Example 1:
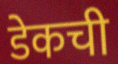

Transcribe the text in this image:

डेकची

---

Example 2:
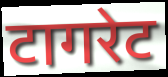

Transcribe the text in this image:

टागरेट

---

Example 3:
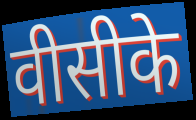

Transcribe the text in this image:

वीसीके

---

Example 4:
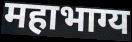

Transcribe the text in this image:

महाभाग्य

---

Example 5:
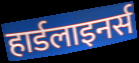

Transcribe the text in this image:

हार्डलाइनर्स